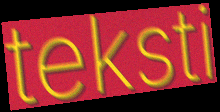
teksti